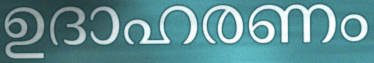
ഉദാഹരണം